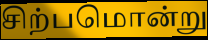
சிற்பமொன்று